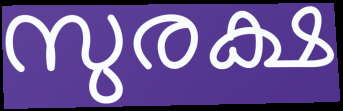
സുരക്ഷ